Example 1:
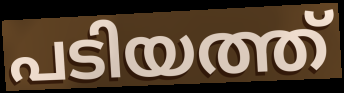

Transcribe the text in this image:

പടിയത്ത്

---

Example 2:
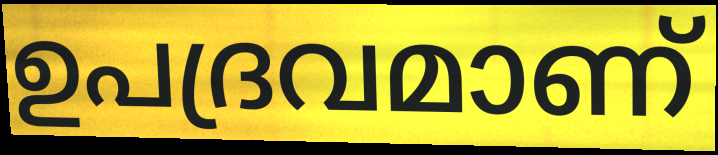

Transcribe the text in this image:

ഉപദ്രവമാണ്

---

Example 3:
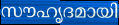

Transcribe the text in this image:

സൗഹൃദമായി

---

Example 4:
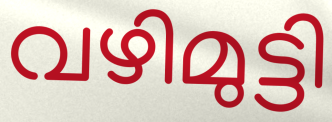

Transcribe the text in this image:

വഴിമുട്ടി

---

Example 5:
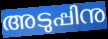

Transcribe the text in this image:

അടുപ്പിനു